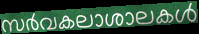
സർവകലാശാലകൾ